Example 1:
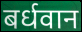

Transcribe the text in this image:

बर्धवान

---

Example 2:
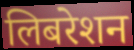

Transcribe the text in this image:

लिबरेशन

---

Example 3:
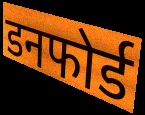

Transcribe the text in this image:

डनफोर्ड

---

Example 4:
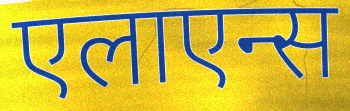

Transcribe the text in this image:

एलाएन्स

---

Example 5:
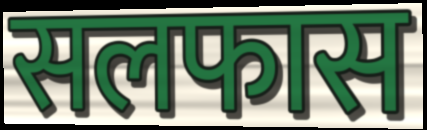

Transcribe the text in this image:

सलफास